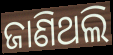
ଜାଣିଥଲି